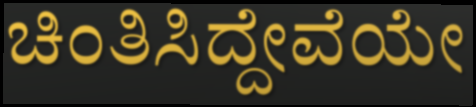
ಚಿಂತಿಸಿದ್ದೇವೆಯೇ